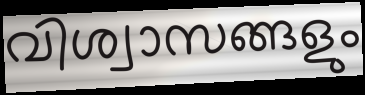
വിശ്വാസങ്ങളും